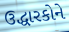
ઉદ્ધારકોને